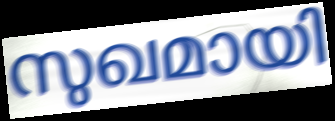
സുഖമായി